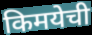
किमयेची